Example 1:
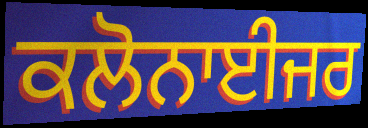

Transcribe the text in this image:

ਕਲੋਨਾਈਜਰ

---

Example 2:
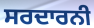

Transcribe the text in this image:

ਸਰਦਾਰਨੀ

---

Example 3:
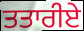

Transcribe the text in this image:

ਤਤਾਰੀਏ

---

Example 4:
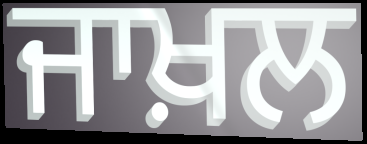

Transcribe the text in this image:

ਜਾਖ਼ਲ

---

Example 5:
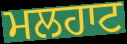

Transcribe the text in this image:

ਮਲਹਾਟ